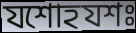
যশোহযশঃ